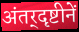
अंतर्दृष्टीनें